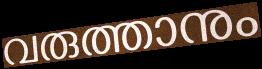
വരുത്താനും